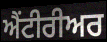
ਐਂਟੀਰੀਅਰ